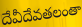
దేవీదేవతలంతా